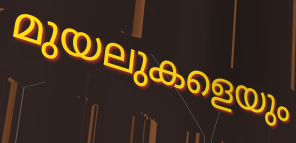
മുയലുകളെയും